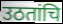
उठतांचि